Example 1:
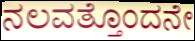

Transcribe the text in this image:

ನಲವತ್ತೊಂದನೇ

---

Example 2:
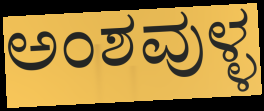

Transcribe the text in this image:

ಅಂಶವುಳ್ಳ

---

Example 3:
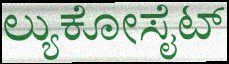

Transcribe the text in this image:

ಲ್ಯುಕೋಸೈಟ್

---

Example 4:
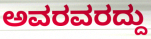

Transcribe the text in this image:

ಅವರವರದ್ದು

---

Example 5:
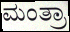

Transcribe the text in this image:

ಮಂತ್ರಾ